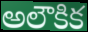
అలౌకిక